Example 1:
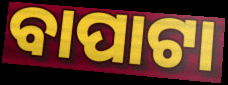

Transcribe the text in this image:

ବାପାଟା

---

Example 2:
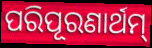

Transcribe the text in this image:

ପରିପୂରଣାର୍ଥମ୍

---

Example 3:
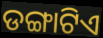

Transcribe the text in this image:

ଡଙ୍ଗାଟିଏ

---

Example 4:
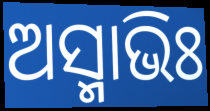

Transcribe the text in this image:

ଅସ୍ମାଭିଃ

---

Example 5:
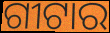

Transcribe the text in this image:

ଗୀଟାର